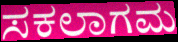
ಸಕಲಾಗಮ